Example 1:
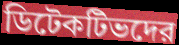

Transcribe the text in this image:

ডিটেকটিভদের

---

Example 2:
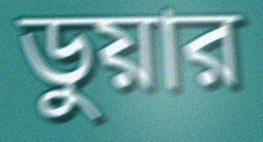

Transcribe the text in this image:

ডুয়ার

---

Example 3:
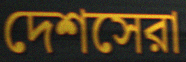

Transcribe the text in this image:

দেশসেরা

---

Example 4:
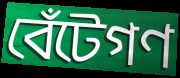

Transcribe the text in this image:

বেঁটেগণ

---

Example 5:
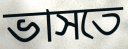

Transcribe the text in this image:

ভাসতে